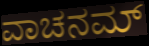
ವಾಚನಮ್